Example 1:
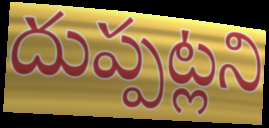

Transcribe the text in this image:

దుప్పట్లని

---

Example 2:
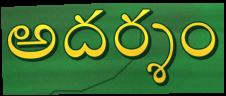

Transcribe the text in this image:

అదర్శం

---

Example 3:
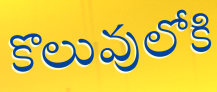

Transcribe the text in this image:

కొలువులోకి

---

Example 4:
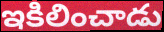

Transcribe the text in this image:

ఇకిలించాడు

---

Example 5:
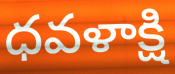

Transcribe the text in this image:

ధవళాక్షి